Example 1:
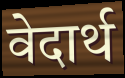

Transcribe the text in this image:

वेदार्थ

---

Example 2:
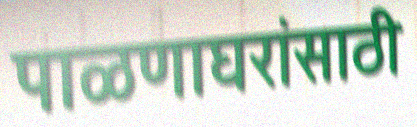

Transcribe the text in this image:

पाळणाघरांसाठी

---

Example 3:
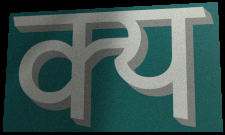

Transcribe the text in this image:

क्य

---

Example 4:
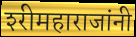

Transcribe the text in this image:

श्रीमहाराजांनी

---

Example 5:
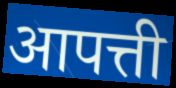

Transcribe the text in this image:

आपत्ती